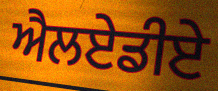
ਐਲਏਡੀਏ